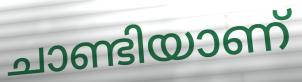
ചാണ്ടിയാണ്